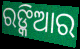
ରଙ୍କିଆର